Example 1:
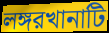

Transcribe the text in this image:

লঙ্গরখানাটি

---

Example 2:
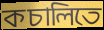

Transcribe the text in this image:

কচালিতে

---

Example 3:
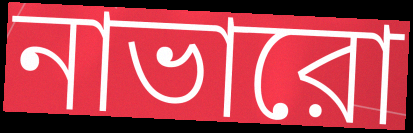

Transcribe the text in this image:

নাভারো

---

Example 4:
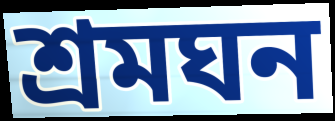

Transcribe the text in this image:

শ্রমঘন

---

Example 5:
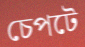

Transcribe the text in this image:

চেপটে